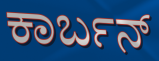
ಕಾರ್ಬನ್